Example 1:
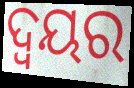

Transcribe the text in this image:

ଦ୍ଵୟର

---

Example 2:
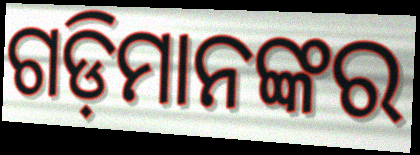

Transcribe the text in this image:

ଗଡ଼ିମାନଙ୍କର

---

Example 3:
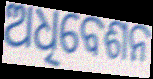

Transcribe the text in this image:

ଅଧିବେଶନ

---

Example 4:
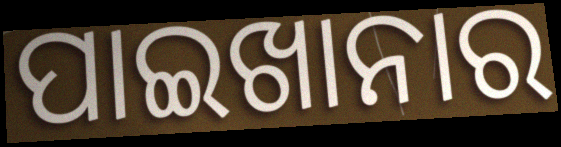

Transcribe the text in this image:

ପାଇଖାନାର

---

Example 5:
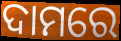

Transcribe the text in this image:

ଦାମରେ